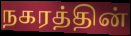
நகரத்தின்